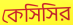
কেসিসির